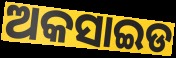
ଅକସାଇଡ